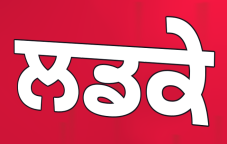
ਲਡਕੇ